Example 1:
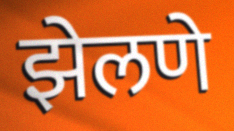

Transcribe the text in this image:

झेलणे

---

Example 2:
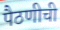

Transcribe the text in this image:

पैठणीची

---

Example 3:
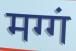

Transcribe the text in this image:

मग्गं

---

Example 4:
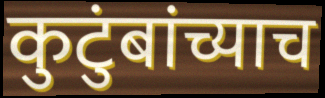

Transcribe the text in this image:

कुटुंबांच्याच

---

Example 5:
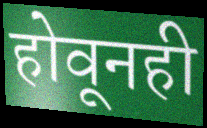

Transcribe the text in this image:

होवूनही